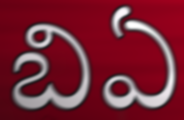
బిఏ